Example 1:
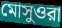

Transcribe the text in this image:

মোসুওরা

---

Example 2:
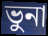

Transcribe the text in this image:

ভুনা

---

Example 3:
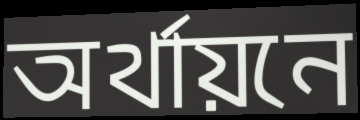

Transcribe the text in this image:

অর্থায়নে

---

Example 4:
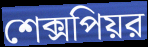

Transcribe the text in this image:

শেক্সপিয়র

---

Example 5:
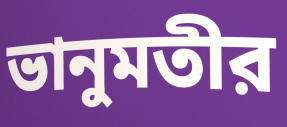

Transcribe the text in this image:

ভানুমতীর